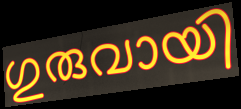
ഗുരുവായി